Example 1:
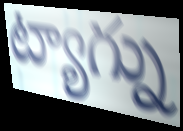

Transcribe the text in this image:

ట్యాగ్ను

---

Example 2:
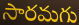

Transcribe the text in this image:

సారమగు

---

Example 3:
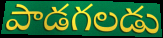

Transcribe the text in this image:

పాడగలడు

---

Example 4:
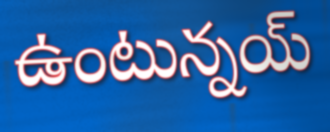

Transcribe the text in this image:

ఉంటున్నయ్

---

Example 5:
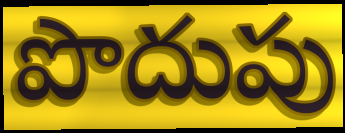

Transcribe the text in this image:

పొదుపు